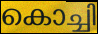
കൊച്ചി